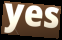
yes